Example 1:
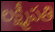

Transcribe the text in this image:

లక్ష్మీపతి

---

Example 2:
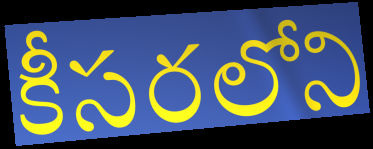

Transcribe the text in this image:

కీసరలోని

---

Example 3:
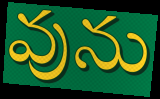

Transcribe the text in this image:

వును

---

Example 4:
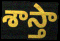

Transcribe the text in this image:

శాస్తా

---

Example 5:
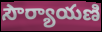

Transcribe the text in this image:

సౌర్యాయణి